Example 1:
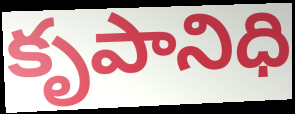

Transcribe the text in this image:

కృపానిధి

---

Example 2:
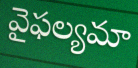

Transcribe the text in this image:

వైఫల్యమా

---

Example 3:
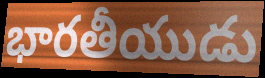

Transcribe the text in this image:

భారతీయుడు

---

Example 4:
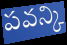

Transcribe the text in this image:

పవన్కి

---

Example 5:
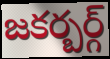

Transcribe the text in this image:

జకర్బర్గ్